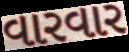
વારવાર